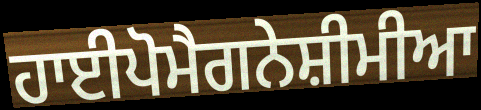
ਹਾਈਪੋਮੈਗਨੇਸ਼ੀਮੀਆ